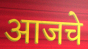
आजचे